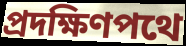
প্রদক্ষিণপথে